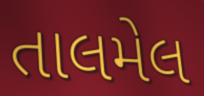
તાલમેલ